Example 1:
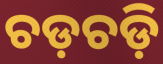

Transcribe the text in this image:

ଚଡ଼ଚଡ଼ି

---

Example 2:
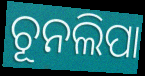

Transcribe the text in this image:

ଚୂନଲିପା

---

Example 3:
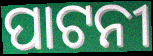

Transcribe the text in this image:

ପାଟନୀ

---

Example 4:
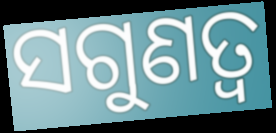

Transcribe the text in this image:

ସଗୁଣତ୍ଵ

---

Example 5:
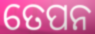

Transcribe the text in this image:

ତେପନ